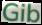
Gib